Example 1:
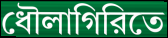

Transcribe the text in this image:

ধৌলাগিরিতে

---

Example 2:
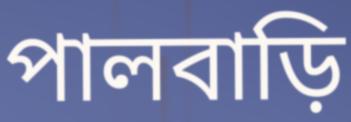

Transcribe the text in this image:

পালবাড়ি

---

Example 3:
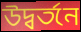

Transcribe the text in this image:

উদ্বর্তনে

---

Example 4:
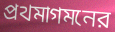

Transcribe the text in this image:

প্রথমাগমনের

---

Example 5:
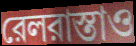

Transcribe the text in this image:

রেলরাস্তাও